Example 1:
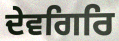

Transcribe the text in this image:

ਦੇਵਗਿਰਿ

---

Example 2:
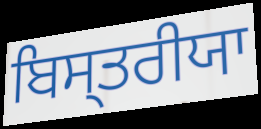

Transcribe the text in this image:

ਬਿਸ੍ਤਰੀਯਾ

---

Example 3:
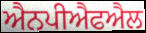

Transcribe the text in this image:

ਐਨਪੀਐਫਐਲ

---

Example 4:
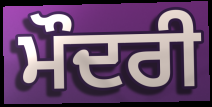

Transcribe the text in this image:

ਮੌਦਰੀ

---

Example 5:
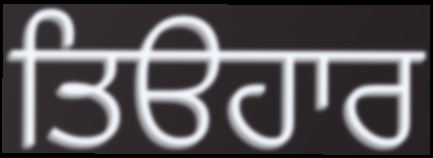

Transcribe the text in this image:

ਤਿੳਹਾਰ